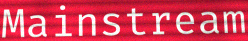
Mainstream